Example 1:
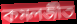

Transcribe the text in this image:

কমলজীত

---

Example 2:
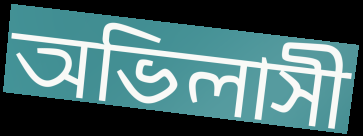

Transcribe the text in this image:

অভিলাসী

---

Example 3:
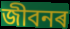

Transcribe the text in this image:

জীবনৰ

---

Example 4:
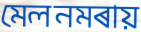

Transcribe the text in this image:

মেলনমৰায়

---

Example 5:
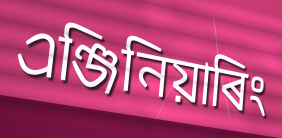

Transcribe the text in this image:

এঞ্জিনিয়াৰিং